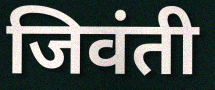
जिवंती